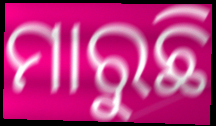
ମାରୁଛି